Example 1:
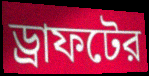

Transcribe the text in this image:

ড্রাফটের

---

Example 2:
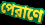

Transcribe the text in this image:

পেরাণে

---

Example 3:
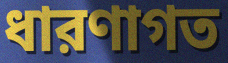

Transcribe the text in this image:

ধারণাগত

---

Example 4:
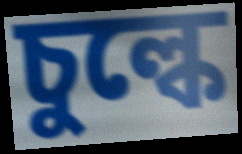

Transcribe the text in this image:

চুল্কে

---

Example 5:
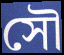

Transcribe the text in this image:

সৌ